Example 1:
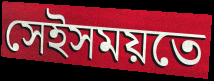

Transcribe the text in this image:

সেইসময়তে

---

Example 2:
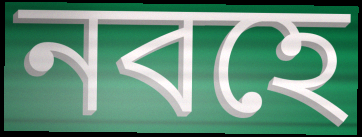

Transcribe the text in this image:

নবহে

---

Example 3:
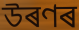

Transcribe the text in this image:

উৰণৰ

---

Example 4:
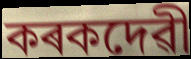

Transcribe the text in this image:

কৰকদেৱী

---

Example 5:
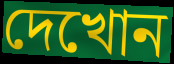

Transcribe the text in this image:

দেখোন